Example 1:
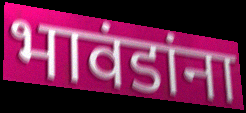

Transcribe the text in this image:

भावंडांना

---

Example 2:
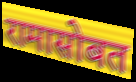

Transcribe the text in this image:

रामासोबत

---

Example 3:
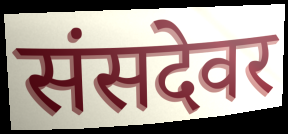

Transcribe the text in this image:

संसदेवर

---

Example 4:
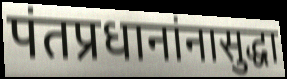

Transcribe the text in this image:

पंतप्रधानांनासुद्धा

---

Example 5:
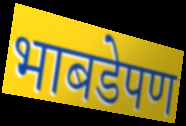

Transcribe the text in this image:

भाबडेपण